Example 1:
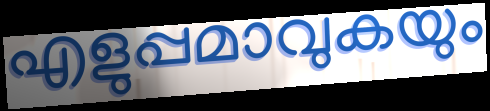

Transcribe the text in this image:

എളുപ്പമാവുകയും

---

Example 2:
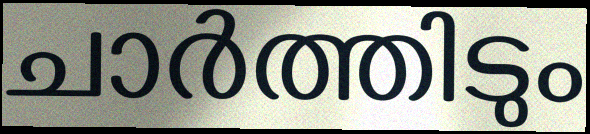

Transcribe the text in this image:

ചാർത്തിടും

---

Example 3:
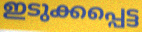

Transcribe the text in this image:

ഇടുക്കപ്പെട്ട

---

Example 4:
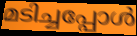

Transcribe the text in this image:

മടിച്ചപ്പോൾ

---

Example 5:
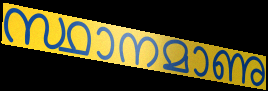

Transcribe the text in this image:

സ്ഥാനമാണു